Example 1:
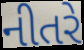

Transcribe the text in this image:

નીતરે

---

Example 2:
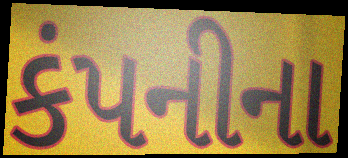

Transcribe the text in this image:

કંપનીના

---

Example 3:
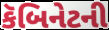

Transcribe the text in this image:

કૅબિનેટની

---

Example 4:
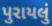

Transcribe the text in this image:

પુરાયલું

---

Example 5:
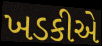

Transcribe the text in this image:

ખડકીએ